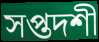
সপ্তদশী